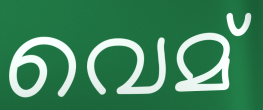
വെമ്